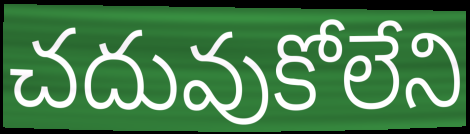
చదువుకోలేని